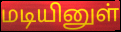
மடியினுள்